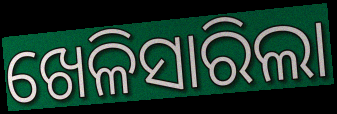
ଖେଳିସାରିଲା